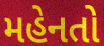
મહેનતો